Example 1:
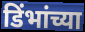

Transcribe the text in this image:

डिंभांच्या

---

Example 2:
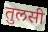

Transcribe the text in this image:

तुलसी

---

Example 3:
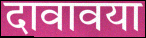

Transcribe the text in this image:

दावावया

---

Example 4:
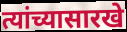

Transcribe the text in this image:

त्यांच्यासारखे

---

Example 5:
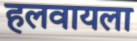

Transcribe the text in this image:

हलवायला